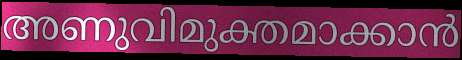
അണുവിമുക്തമാക്കാൻ